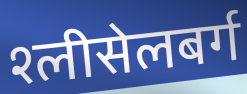
श्लीसेलबर्ग